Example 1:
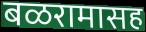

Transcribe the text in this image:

बळरामासह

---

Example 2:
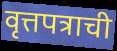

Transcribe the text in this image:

वृत्तपत्राची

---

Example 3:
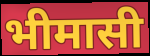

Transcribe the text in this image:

भीमासी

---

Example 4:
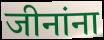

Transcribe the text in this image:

जीनांना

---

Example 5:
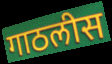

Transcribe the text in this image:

गाठलीस